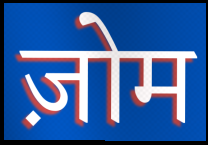
ज़ोम